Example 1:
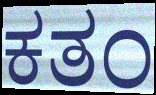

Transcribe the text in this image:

ಕತಂ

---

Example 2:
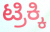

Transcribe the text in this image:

ಟ್ರಿಕ್ಕಿ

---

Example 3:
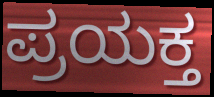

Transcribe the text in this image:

ಪ್ರಯಕ್ತ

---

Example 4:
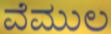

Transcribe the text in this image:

ವೆಮುಲ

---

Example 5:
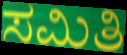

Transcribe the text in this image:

ಸಮಿತಿ